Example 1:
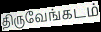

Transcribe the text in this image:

திருவேங்கடம்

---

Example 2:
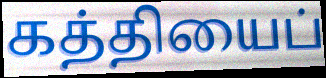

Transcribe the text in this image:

கத்தியைப்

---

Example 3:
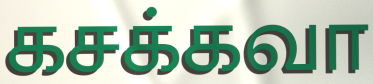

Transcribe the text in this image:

கசக்கவா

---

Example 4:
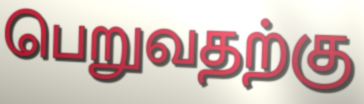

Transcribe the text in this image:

பெறுவதற்கு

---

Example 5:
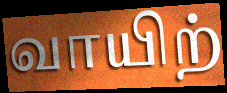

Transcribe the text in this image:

வாயிற்